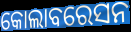
କୋଲାବରେସନ